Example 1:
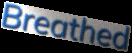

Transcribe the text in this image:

Breathed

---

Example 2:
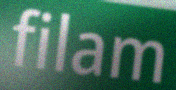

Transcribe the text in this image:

filam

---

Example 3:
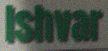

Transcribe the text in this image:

Ishvar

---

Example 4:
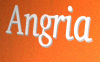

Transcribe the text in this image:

Angria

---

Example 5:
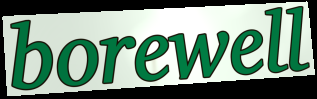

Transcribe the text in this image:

borewell